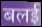
बलई